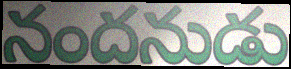
నందనుడు